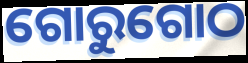
ଗୋରୁଗୋଠ